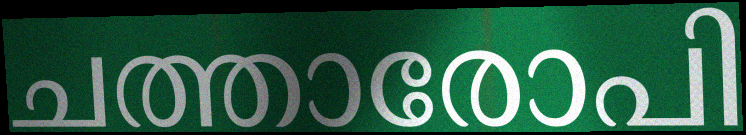
ചത്താരോപി